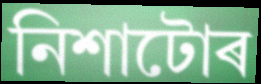
নিশাটোৰ